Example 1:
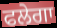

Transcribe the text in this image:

ਫਲੇਗਾ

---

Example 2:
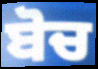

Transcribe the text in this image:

ਬੋਚ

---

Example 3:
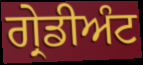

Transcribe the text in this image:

ਗ੍ਰੇਡੀਅੰਟ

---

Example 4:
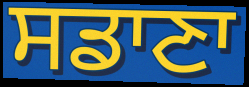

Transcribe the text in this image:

ਸਡਾਣਾ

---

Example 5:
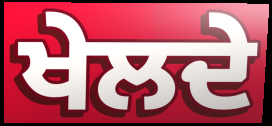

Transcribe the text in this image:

ਖੇਲਦੇ